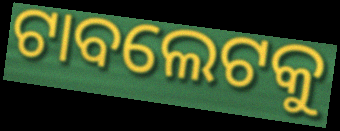
ଟାବଲେଟକୁ